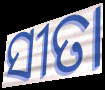
ସୀତା